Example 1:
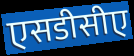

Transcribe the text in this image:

एसडीसीए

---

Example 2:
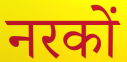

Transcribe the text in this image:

नरकों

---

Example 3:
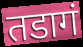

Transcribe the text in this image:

तडागं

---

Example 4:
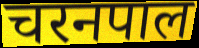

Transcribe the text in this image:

चरनपाल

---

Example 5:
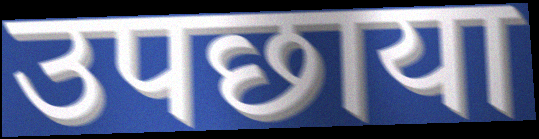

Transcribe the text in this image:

उपछाया